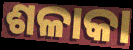
ଶଳାକା